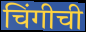
चिंगीची